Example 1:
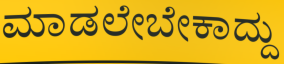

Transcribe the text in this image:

ಮಾಡಲೇಬೇಕಾದ್ದು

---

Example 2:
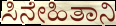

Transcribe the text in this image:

ಸಿನೇಹಿತಾನಿ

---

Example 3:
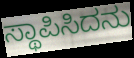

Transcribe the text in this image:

ಸ್ಥಾಪಿಸಿದನು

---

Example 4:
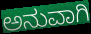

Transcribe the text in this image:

ಅನುವಾಗಿ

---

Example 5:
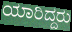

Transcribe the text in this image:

ಯಾರಿದ್ದರು